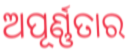
ଅପୂର୍ଣ୍ଣତାର